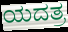
ಯದತ್ರ